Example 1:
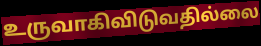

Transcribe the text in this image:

உருவாகிவிடுவதில்லை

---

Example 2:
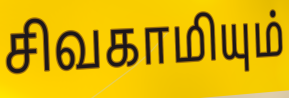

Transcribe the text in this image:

சிவகாமியும்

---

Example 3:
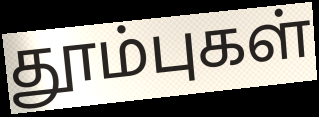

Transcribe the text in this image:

தூம்புகள்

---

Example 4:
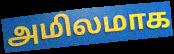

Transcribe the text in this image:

அமிலமாக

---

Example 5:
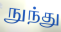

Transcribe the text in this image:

நுந்து